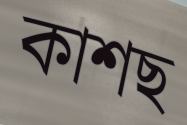
কাশছ